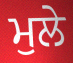
ਮੁਲੇ